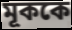
মূককে